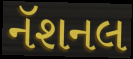
નૅશનલ